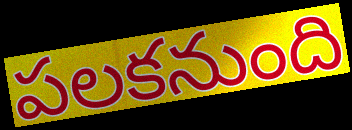
పలకనుంది